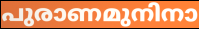
പുരാണമുനിനാ